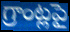
గ్రాంట్లపై